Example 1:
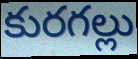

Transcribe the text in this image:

కురగల్లు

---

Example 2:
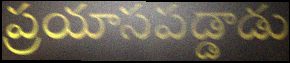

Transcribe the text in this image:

ప్రయాసపడ్డాడు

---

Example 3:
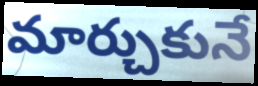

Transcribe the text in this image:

మార్చుకునే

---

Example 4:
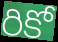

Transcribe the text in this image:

రికో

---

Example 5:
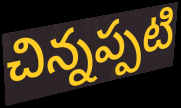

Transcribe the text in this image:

చిన్నప్పటి